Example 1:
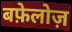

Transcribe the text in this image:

बफ़ेलोज़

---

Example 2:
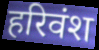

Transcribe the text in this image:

हरिवंश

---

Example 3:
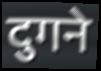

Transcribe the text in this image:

दुगने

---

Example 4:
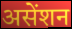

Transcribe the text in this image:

असेंशन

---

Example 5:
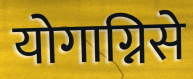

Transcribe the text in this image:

योगाग्निसे